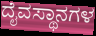
ದೈವಸ್ಥಾನಗಳ